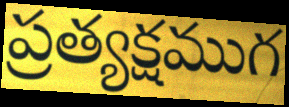
ప్రత్యక్షముగ